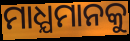
ମାଧ୍ଯମାନକୁ